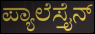
ಪ್ಯಾಲೆಸ್ತೈನ್